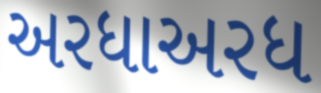
અરધાઅરધ